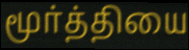
மூர்த்தியை